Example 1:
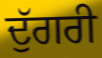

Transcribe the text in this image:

ਦੁੱਗਰੀ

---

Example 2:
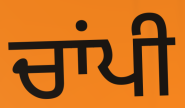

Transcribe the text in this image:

ਚਾਂਪੀ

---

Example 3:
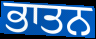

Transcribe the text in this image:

ਭਾਤਨ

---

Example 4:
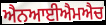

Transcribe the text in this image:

ਐਨਆਈਐਮਐਚ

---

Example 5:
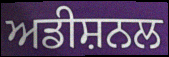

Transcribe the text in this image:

ਅਡੀਸ਼ਨਲ